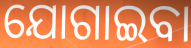
ଯୋଗାଇବା